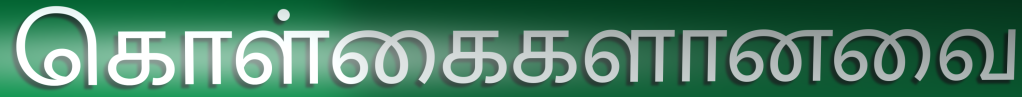
கொள்கைகளானவை